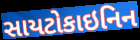
સાયટોકાઇનિન